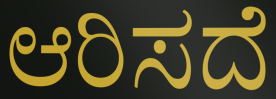
ಆರಿಸದೆ